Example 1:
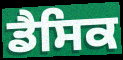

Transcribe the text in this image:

ਡੈਸਿਕ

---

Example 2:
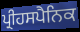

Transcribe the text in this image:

ਪ੍ਰੀਹਸਪੈਨਿਕ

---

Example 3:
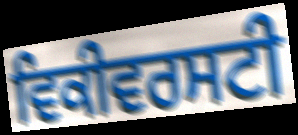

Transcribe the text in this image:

ਵਿਕੀਵਰਸਟੀ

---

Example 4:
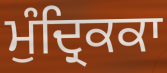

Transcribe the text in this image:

ਮੁੰਦ੍ਰਿਕਕਾ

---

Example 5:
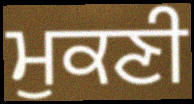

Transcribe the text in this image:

ਮੁਕਣੀ